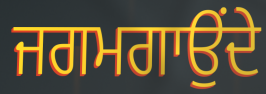
ਜਗਮਗਾਉਂਦੇ